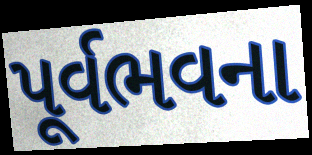
પૂર્વભવના